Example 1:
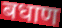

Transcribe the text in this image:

बधाण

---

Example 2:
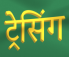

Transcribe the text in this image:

ट्रेसिंग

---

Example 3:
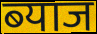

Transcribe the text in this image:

ब्‍याज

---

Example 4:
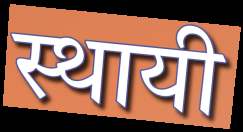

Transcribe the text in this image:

स्‍थायी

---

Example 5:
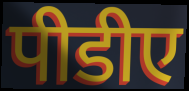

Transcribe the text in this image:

पीडीए